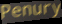
Penury